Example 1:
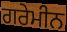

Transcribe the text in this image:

ਗਰੇਮੀਨ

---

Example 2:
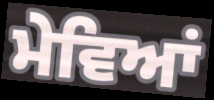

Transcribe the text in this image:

ਮੇਵਿਆਂ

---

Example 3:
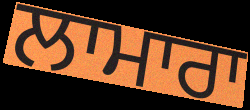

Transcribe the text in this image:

ਲਾਮਾਰਾ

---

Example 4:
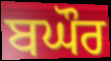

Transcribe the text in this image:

ਬਘੌਰ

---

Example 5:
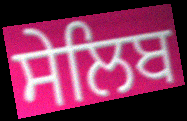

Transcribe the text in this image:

ਸੇਲਿਬ